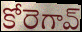
కోరెగావ్